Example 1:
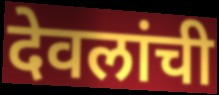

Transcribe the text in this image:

देवलांची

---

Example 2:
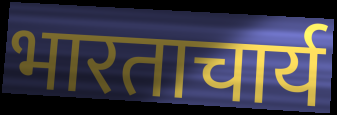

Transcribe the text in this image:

भारताचार्य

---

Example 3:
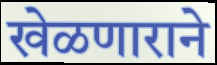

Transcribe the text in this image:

खेळणाराने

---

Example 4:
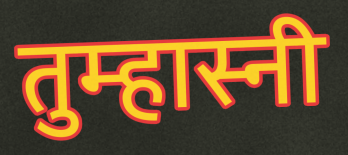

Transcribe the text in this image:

तुम्हास्नी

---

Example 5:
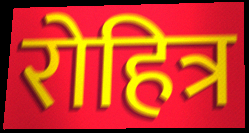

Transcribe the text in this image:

रोहित्र